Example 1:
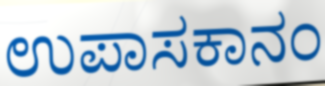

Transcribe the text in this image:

ಉಪಾಸಕಾನಂ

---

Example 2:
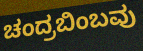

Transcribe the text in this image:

ಚಂದ್ರಬಿಂಬವು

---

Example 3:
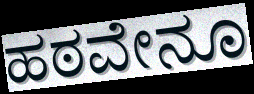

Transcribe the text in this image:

ಹಠವೇನೂ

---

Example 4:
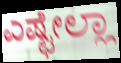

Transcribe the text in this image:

ಎಷ್ಟೇಲ್ಲಾ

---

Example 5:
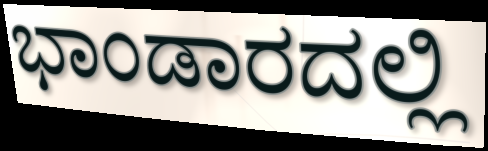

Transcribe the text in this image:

ಭಾಂಡಾರದಲ್ಲಿ